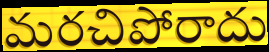
మరచిపోరాదు